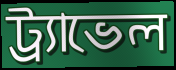
ট্র্যাভেল